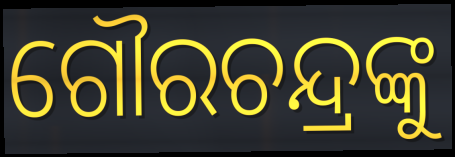
ଗୌରଚନ୍ଦ୍ରଙ୍କୁ